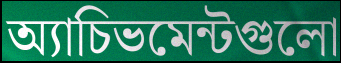
অ্যাচিভমেন্টগুলো